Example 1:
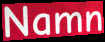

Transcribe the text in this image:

Namn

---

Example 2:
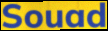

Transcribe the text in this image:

Souad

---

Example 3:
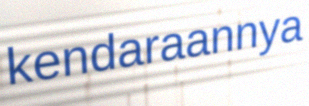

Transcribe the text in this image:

kendaraannya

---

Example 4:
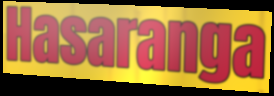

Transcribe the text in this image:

Hasaranga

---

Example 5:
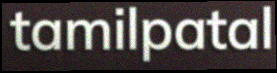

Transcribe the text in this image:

tamilpatal